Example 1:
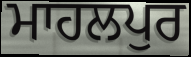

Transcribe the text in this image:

ਮਾਹਲਪੁਰ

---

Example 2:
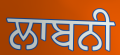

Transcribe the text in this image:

ਲਾਬਨੀ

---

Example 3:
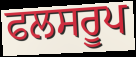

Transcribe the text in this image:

ਫਲਸਰੂਪ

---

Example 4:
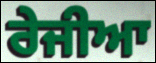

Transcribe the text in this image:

ਰੇਜੀਆ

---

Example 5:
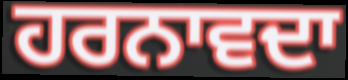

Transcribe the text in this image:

ਹਰਨਾਵਦਾ